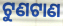
ଟୁଣଟାଣ